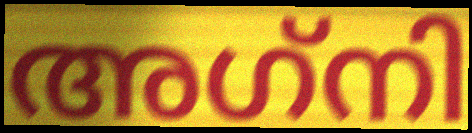
അഗ്‌നി